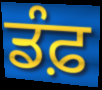
ਡੰਫ਼